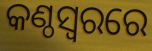
କଣ୍ଠସ୍ୱରରେ